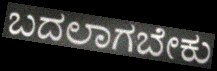
ಬದಲಾಗಬೇಕು